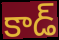
కాడ్